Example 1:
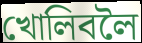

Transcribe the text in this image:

খোলিবলৈ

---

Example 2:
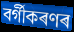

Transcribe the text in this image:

বৰ্গীকৰণৰ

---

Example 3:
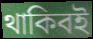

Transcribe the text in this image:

থাকিবই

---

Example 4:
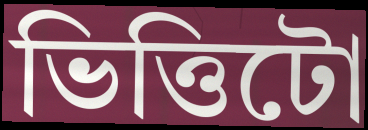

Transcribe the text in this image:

ভিত্তিটো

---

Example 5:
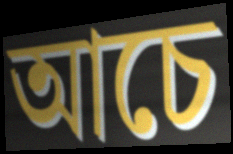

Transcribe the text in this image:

আচে